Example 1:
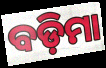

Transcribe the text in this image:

ବଡ଼ିମା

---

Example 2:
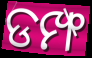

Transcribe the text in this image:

ଡମ୍ଫ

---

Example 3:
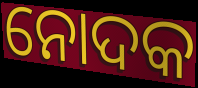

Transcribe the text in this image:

ନୋଦକ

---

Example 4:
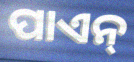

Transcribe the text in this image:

ପାଏନ୍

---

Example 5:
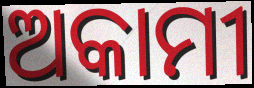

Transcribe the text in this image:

ଅକାମୀ